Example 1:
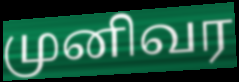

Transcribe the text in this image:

முனிவர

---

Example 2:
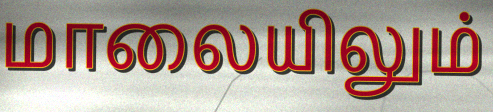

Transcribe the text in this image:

மாலையிலும்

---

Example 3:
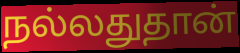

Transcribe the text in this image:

நல்லதுதான்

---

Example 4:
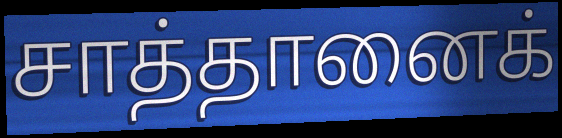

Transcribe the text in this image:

சாத்தானைக்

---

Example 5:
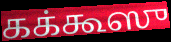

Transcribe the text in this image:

கக்கூஸு